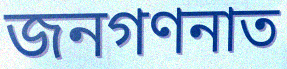
জনগণনাত